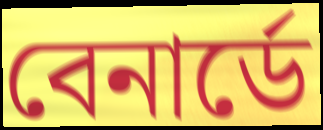
বেনাৰ্ডে